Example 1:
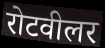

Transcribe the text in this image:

रोटवीलर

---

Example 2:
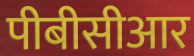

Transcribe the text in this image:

पीबीसीआर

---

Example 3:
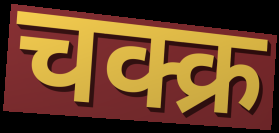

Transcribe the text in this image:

चक्क्र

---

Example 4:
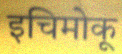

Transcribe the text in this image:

इचिमोकू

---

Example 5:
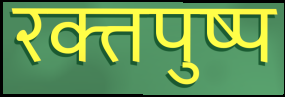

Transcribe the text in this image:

रक्तपुष्प